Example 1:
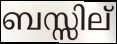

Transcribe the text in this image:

ബസ്സില്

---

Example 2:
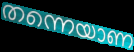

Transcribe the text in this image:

തന്നെയാണ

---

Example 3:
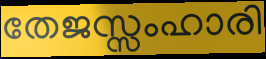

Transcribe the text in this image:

തേജസ്സംഹാരി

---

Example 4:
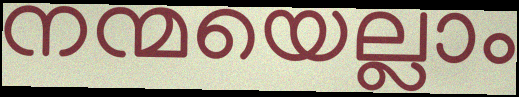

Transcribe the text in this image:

നന്മയെല്ലാം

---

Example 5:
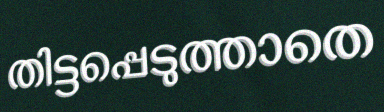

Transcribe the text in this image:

തിട്ടപ്പെടുത്താതെ